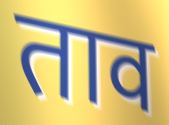
ताव